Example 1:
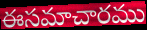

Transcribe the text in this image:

ఈసమాచారము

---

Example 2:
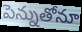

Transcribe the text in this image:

పెన్నుతోనూ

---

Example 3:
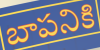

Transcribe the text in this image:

బాపనికి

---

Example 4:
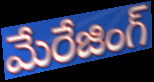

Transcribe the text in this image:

మేరేజింగ్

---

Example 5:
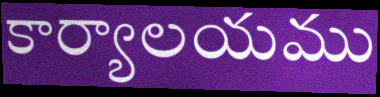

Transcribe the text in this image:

కార్యాలయము